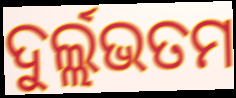
ଦୁର୍ଲ୍ଲଭତମ